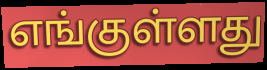
எங்குள்ளது